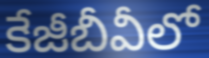
కేజీబీవీలో